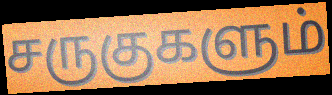
சருகுகளும்